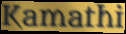
Kamathi